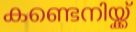
കണ്ടെനിയ്ക്ക്